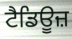
ਟੈਡਿਊਜ਼